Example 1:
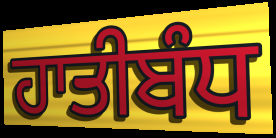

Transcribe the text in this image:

ਹਾਤੀਬੰਧ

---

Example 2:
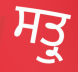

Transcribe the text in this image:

ਸਤ੍ਰੁ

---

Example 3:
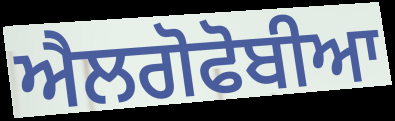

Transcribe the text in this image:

ਐਲਗੋਫੋਬੀਆ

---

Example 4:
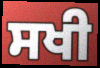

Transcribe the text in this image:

ਸਖੀ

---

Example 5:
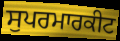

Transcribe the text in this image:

ਸੁਪਰਮਾਰਕੀਟ